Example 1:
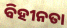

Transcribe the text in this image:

ବିହୀନତା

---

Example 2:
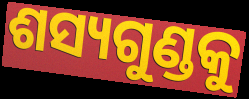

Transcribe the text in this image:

ଶସ୍ୟଗୁଣ୍ଡକୁ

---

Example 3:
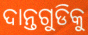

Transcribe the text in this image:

ଦାନ୍ତଗୁଡିକୁ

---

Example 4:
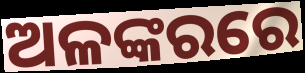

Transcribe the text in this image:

ଅଳଙ୍କରରେ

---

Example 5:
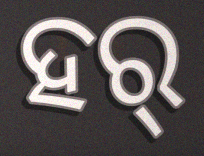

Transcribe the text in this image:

ହର୍